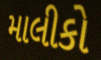
માલીકો